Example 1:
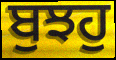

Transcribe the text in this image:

ਬੁਝਹੁ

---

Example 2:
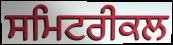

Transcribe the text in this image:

ਸਮਿਟਰੀਕਲ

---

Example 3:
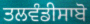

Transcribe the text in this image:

ਤਲਵੰਡੀਸਾਬੋ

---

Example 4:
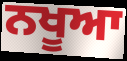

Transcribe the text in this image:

ਨਖੂਆ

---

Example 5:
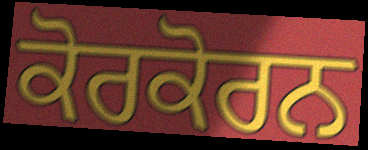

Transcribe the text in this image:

ਕੋਰਕੋਰਨ